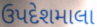
ઉપદેશમાલા